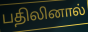
பதிலினால்